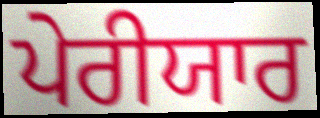
ਪੇਰੀਯਾਰ